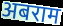
अबराम